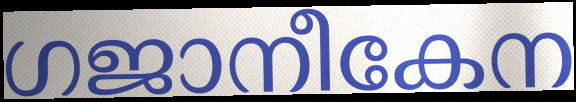
ഗജാനീകേന